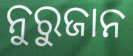
ନୁରୁଜାନ